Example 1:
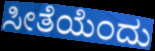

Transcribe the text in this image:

ಸೀತೆಯೆಂದು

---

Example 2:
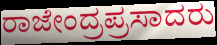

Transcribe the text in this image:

ರಾಜೇಂದ್ರಪ್ರಸಾದರು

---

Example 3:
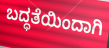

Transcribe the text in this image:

ಬದ್ಧತೆಯಿಂದಾಗಿ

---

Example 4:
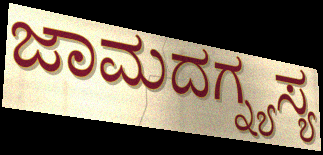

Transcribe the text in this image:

ಜಾಮದಗ್ನ್ಯಸ್ಯ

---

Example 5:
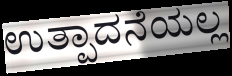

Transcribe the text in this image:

ಉತ್ಪಾದನೆಯಲ್ಲ